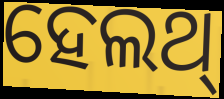
ହେଲଥ୍